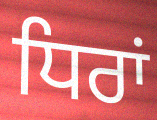
ਧਿਰਾਂ